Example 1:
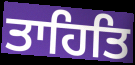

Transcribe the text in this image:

ਤਾਹਿਤਿ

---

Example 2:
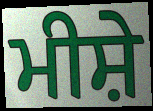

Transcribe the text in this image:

ਮੀਸ਼ੇ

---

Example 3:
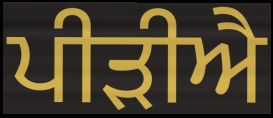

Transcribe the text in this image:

ਪੀੜੀਐ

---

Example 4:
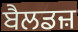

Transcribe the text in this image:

ਬੈਲਡਜ਼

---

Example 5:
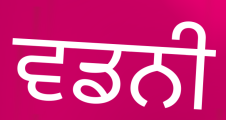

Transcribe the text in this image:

ਵਡਨੀ